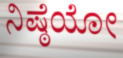
ನಿಷ್ಠೆಯೋ